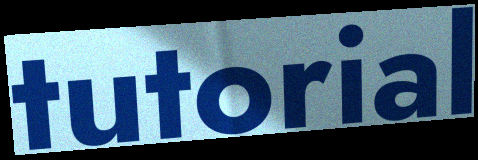
tutorial